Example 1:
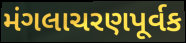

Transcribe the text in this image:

મંગલાચરણપૂર્વક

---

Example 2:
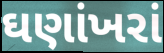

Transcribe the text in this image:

ઘણાંખરાં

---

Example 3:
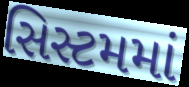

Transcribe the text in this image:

સિસ્ટમમાં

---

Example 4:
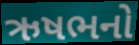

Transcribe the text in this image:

ઋષભનો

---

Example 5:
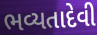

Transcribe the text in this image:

ભવ્યતાદેવી